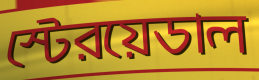
স্টেরয়েডাল